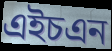
এইচএন